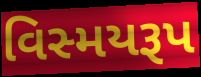
વિસ્મયરૂપ